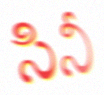
సినీ